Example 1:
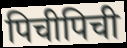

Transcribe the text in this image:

पिचीपिची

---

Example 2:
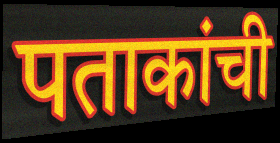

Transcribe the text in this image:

पताकांची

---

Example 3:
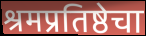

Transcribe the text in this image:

श्रमप्रतिष्ठेचा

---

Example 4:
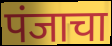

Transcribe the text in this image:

पंजाचा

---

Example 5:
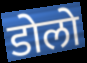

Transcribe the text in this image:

डोलो